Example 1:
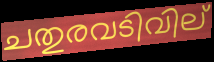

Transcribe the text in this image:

ചതുരവടിവില്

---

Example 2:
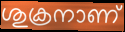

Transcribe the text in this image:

ശുക്രനാണ്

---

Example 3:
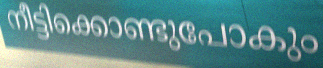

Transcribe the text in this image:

നീട്ടിക്കൊണ്ടുപോകും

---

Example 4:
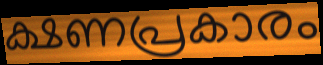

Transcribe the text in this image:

ക്ഷണപ്രകാരം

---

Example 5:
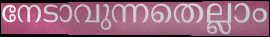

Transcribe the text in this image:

നേടാവുന്നതെല്ലാം